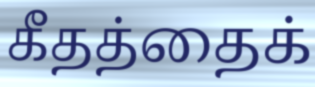
கீதத்தைக்